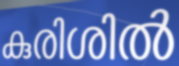
കുരിശിൽ